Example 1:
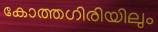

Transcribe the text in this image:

കോത്തഗിരിയിലും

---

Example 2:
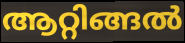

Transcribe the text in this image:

ആറ്റിങ്ങൽ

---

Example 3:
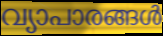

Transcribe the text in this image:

വ്യാപാരങ്ങൾ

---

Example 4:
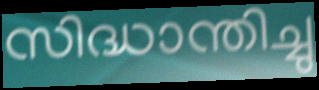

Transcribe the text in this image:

സിദ്ധാന്തിച്ചു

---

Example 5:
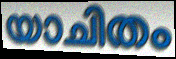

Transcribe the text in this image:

യാചിതം